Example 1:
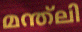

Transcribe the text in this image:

മന്ത്ലി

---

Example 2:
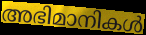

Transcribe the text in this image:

അഭിമാനികൾ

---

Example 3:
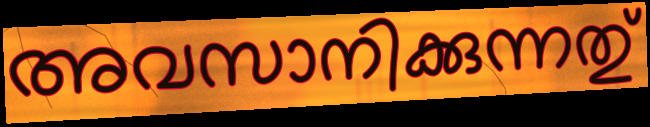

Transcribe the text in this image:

അവസാനിക്കുന്നതു്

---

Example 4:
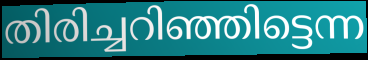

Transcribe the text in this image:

തിരിച്ചറിഞ്ഞിട്ടെന്ന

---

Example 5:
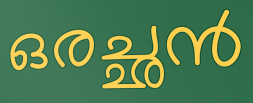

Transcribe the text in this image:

ഒരച്ഛൻ